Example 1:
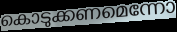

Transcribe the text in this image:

കൊടുക്കണമെന്നോ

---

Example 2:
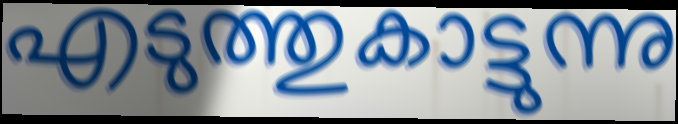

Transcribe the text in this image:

എടുത്തുകാട്ടുന്നു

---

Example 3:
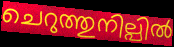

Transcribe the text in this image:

ചെറുത്തുനില്പിൽ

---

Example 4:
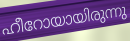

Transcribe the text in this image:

ഹീറോയായിരുന്നു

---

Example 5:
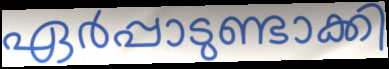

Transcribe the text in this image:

ഏർപ്പാടുണ്ടാക്കി